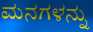
ಮನಗಳನ್ನು